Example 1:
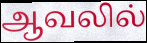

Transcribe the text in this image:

ஆவலில்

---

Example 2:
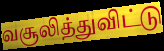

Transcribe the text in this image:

வசூலித்துவிட்டு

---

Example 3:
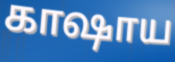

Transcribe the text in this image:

காஷாய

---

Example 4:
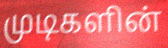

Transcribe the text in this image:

முடிகளின்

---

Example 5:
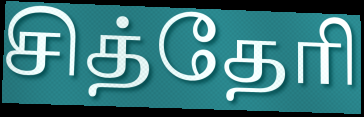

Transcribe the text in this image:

சித்தேரி